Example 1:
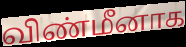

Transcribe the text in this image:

விண்மீனாக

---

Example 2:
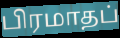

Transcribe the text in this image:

பிரமாதப்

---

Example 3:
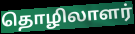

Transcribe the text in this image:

தொழிலாளர்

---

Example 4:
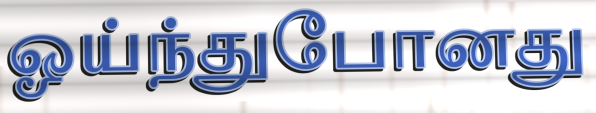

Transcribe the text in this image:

ஓய்ந்துபோனது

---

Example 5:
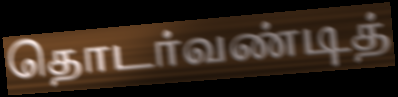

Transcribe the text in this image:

தொடர்வண்டித்